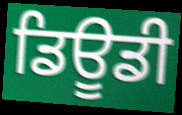
ਡਿਊਡੀ